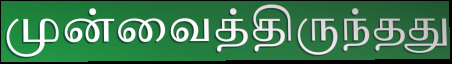
முன்வைத்திருந்தது